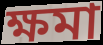
ক্ষমা